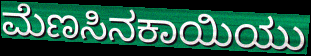
ಮೆಣಸಿನಕಾಯಿಯು